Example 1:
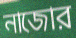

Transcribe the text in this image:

নাজোর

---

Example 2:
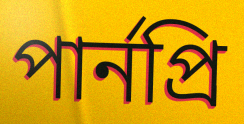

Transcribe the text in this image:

পার্নপ্রি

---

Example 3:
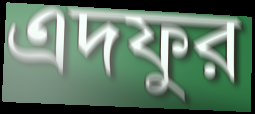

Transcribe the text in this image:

এদফুর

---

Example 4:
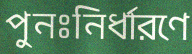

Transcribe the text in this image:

পুনঃনির্ধারণে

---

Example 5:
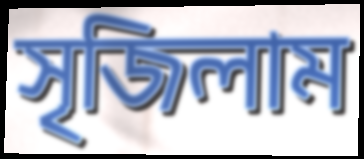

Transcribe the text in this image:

সৃজিলাম